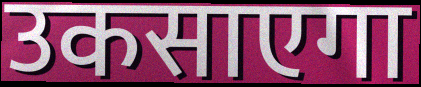
उकसाएगा